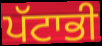
ਪੱਟਾਭੀ